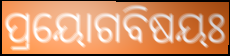
ପ୍ରୟୋଗବିଷୟଃ